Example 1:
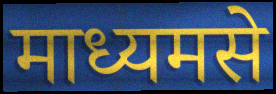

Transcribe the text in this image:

माध्यमसे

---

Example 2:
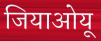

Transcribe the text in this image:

जियाओयू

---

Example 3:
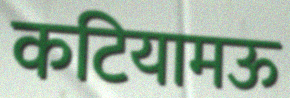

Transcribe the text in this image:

कटियामऊ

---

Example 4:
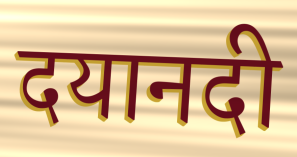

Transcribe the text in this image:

दयानदी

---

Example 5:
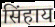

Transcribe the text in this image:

सिंहाय